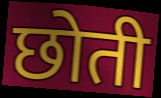
छोती